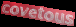
covetous